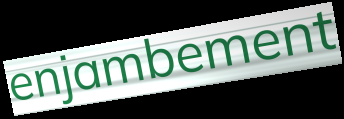
enjambement